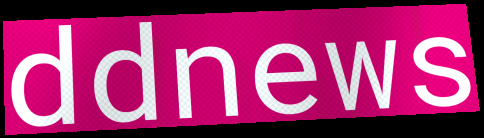
ddnews